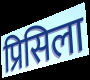
प्रिसिला